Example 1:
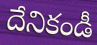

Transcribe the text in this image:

దేనికండీ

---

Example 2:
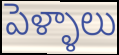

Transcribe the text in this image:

పెళ్ళాలు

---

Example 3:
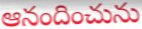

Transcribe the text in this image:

ఆనందించును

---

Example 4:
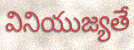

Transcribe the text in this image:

వినియుజ్యతే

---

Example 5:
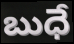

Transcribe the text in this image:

బుధే